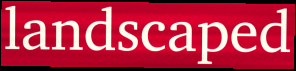
landscaped